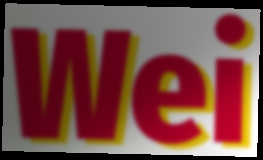
Wei